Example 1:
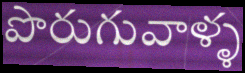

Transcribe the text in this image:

పొరుగువాళ్ళ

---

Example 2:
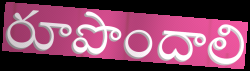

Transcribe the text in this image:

రూపొందాలి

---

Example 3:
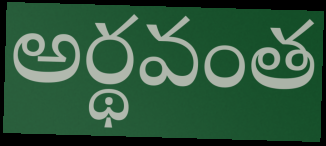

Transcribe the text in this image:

అర్థవంత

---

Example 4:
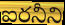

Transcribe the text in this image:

ఐరనీని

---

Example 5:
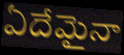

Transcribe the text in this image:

ఏదేమైనా